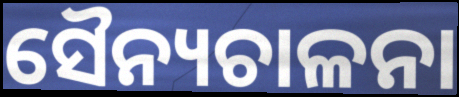
ସୈନ୍ୟଚାଳନା